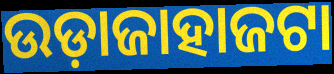
ଉଡ଼ାଜାହାଜଟା